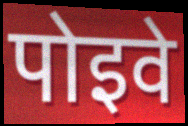
पोइवे